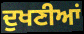
ਦੁਖਣੀਆਂ